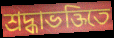
শ্রদ্ধাভক্তিতে